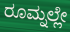
ರೂಮ್ನಲ್ಲೇ